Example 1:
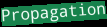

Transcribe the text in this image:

Propagation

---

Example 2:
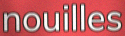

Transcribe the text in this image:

nouilles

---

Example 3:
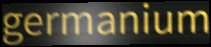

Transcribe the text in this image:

germanium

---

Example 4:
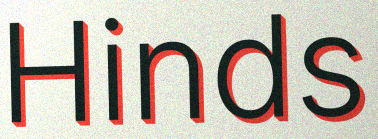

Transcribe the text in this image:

Hinds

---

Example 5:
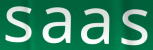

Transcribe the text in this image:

saas